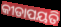
କୀଡାପୟତି